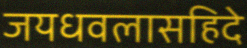
जयधवलासहिदे